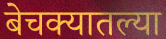
बेचक्यातल्या